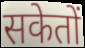
सकेतों